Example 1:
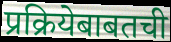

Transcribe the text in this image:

प्रक्रियेबाबतची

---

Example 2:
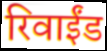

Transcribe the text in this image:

रिवाईंड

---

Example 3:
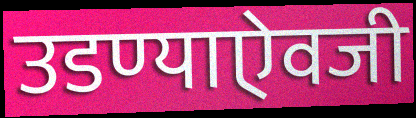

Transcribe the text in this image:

उडण्याऐवजी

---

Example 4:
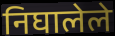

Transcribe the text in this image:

निघालेले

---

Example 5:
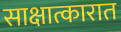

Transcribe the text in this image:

साक्षात्कारात